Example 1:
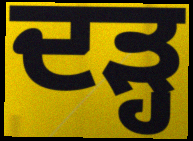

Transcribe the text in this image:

ਦੜ੍ਹ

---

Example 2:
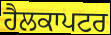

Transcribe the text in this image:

ਹੈਲਕਾਪਟਰ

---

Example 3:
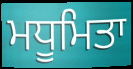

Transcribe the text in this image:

ਮਧੂਮਿਤਾ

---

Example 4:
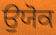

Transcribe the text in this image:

ਉਯੋਕ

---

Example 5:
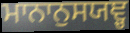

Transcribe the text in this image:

ਮਾਨਾਨੁਸਯਞ੍ਚ